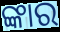
ଙ୍କାର